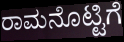
ರಾಮನೊಟ್ಟಿಗೆ